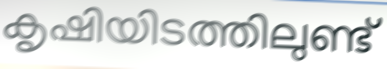
കൃഷിയിടത്തിലുണ്ട്